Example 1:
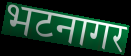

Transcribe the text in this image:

भटनागर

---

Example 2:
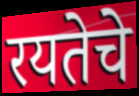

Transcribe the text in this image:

रयतेचे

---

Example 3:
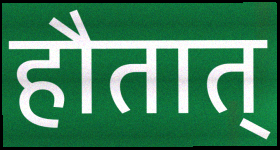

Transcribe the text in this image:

हौतात्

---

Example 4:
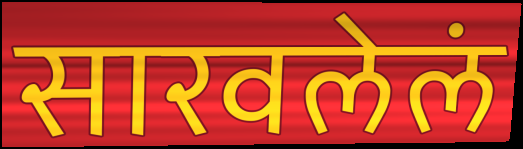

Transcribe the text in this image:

सारवलेलं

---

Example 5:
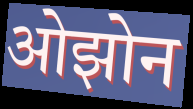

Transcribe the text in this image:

ओझोन